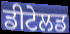
ਡੀਟੇਲਡ